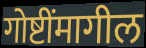
गोष्टींमागील